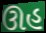
ઊહ